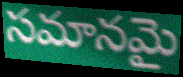
సమానమై